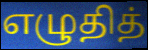
எழுதித்